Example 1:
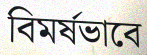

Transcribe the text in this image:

বিমর্ষভাবে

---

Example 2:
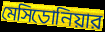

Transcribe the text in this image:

মেসিডোনিয়ার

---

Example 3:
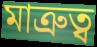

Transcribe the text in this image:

মাত্রুত্ব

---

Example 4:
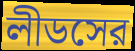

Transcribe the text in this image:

লীডসের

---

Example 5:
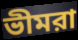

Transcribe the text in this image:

ভীমরা